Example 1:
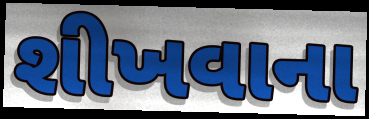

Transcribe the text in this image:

શીખવાના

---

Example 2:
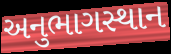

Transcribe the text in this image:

અનુભાગસ્થાન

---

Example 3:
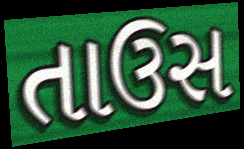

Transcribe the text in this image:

તાઉસ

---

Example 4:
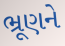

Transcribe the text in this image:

ભ્રૂણને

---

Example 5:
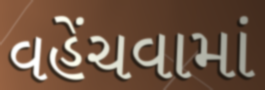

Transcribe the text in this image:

વહેંચવામાં